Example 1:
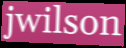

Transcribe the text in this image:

jwilson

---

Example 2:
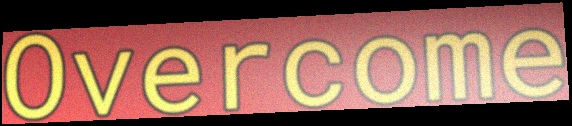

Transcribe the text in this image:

Overcome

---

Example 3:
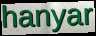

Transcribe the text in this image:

hanyar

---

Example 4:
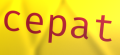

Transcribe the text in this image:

cepat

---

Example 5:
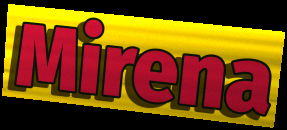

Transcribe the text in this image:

Mirena